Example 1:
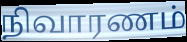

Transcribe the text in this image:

நிவாரணம்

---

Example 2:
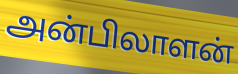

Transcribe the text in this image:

அன்பிலாளன்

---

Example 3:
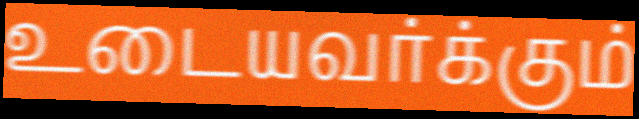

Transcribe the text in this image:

உடையவர்க்கும்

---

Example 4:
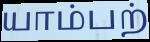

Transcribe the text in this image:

யாம்பற்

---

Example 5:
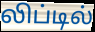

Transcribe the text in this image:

லிப்டில்